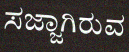
ಸಜ್ಜಾಗಿರುವ